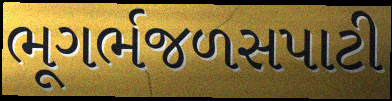
ભૂગર્ભજળસપાટી